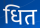
धित